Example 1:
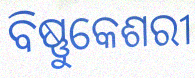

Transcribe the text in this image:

ବିଷ୍ଣୁକେଶରୀ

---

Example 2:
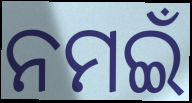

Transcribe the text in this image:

ନମଇଁ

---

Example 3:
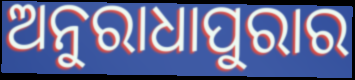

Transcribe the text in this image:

ଅନୁରାଧାପୁରାର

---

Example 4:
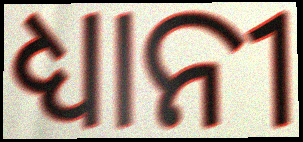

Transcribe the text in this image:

ଧ୍ୟାନୀ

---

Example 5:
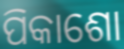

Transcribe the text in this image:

ପିକାଶୋ